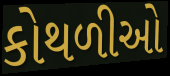
કોથળીઓ